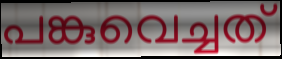
പങ്കുവെച്ചത്